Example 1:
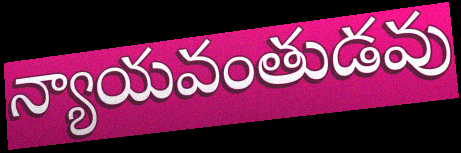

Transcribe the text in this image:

న్యాయవంతుడవు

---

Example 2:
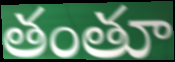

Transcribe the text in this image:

తంతూ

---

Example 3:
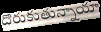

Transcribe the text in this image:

దొరుకుతున్నాయా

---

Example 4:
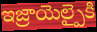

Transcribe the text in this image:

ఇజ్రాయెల్పైకి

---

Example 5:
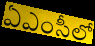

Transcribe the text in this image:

ఏఎంసీలో